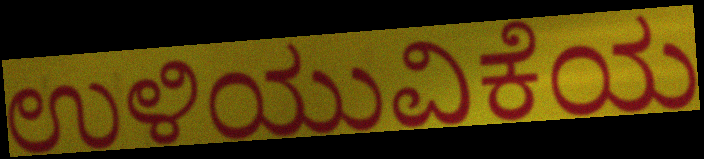
ಉಳಿಯುವಿಕೆಯ